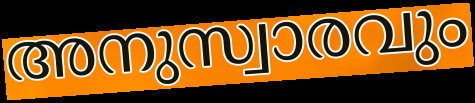
അനുസ്വാരവും